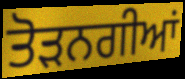
ਤੋੜਨਗੀਆਂ